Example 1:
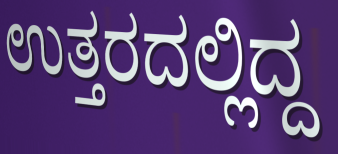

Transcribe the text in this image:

ಉತ್ತರದಲ್ಲಿದ್ದ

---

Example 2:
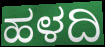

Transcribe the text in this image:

ಹಳದಿ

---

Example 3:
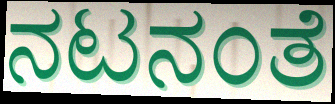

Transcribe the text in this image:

ನಟನಂತೆ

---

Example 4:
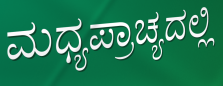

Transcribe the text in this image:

ಮಧ್ಯಪ್ರಾಚ್ಯದಲ್ಲಿ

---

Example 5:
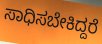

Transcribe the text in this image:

ಸಾಧಿಸಬೇಕಿದ್ದರೆ